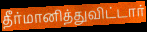
தீர்மானித்துவிட்டார்